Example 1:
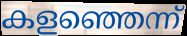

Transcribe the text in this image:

കളഞ്ഞെന്ന്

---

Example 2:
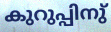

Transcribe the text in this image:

കുറുപ്പിനു്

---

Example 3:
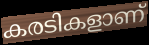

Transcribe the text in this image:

കരടികളാണ്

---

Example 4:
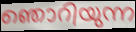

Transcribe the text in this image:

ഞൊറിയുന്ന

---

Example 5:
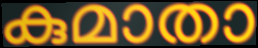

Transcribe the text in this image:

കുമാതാ